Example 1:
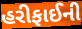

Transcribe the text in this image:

હરીફાઈની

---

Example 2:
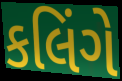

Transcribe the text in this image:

કલિંગે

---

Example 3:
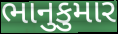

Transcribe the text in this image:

ભાનુકુમાર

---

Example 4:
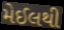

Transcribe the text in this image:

મેઈલથી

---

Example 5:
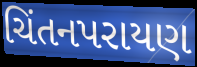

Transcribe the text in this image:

ચિંતનપરાયણ